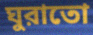
ঘুরাতো